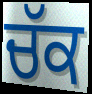
ਚੱਕ